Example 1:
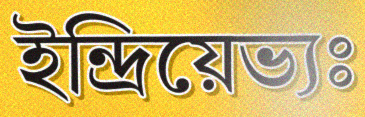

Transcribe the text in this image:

ইন্দ্রিয়েভ্যঃ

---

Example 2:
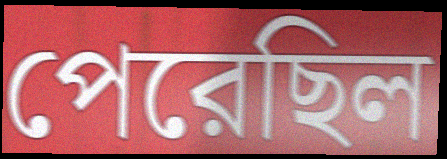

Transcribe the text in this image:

পেরেছিল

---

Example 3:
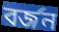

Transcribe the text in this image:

বর্জন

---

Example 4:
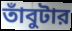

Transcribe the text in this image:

তাঁবুটার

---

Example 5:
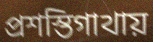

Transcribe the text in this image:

প্রশস্তিগাথায়